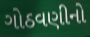
ગોઠવણીનો